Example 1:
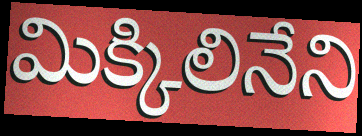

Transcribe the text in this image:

మిక్కిలినేని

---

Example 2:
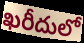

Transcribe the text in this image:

ఖరీదులో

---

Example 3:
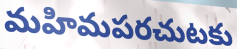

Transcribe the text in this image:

మహిమపరచుటకు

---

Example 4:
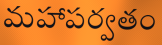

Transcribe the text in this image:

మహాపర్వతం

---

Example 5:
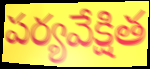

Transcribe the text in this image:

పర్యవేక్షిత